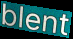
blent